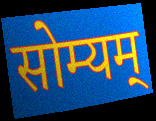
सोम्यम्